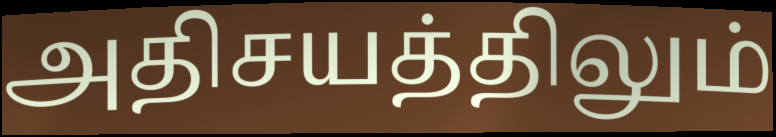
அதிசயத்திலும்